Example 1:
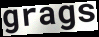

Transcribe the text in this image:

grags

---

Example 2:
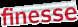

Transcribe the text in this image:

finesse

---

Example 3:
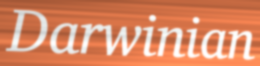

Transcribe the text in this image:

Darwinian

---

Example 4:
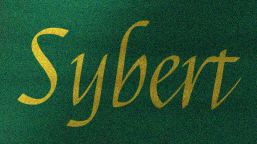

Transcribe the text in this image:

Sybert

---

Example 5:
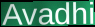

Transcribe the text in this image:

Avadhi